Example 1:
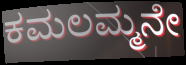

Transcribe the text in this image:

ಕಮಲಮ್ಮನೇ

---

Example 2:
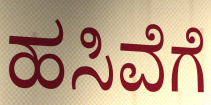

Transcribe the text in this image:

ಹಸಿವೆಗೆ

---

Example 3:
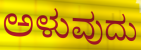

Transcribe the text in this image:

ಅಳುವುದು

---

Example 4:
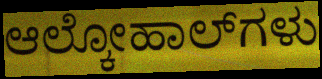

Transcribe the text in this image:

ಆಲ್ಕೋಹಾಲ್‌ಗಳು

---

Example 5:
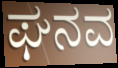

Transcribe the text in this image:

ಘನವ